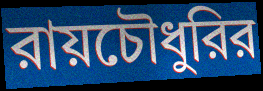
রায়চৌধুরির